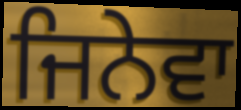
ਜਿਨੇਵਾ